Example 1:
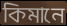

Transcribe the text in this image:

কিমানে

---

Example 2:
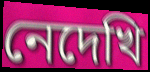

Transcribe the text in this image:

নেদেখি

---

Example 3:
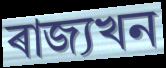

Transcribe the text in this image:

ৰাজ্যখন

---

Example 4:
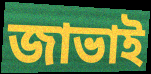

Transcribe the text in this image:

জাভাই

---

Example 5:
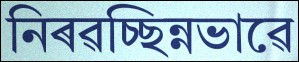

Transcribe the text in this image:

নিৰৱচ্ছিন্নভাৱে